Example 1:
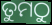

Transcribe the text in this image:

ତୁମଠୁ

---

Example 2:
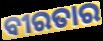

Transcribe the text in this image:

ବୀରତାର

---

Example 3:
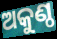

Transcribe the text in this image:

ଅକୁଣ୍ଠ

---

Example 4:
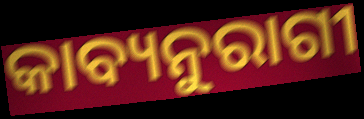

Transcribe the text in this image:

କାବ୍ୟନୁରାଗୀ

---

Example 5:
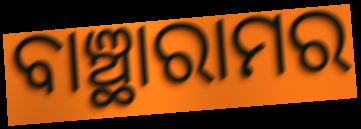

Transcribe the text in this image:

ବାଞ୍ଛାରାମର